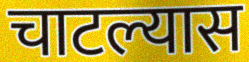
चाटल्यास